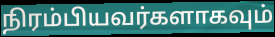
நிரம்பியவர்களாகவும்